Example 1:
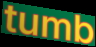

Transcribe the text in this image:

tumb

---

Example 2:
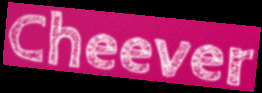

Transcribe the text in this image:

Cheever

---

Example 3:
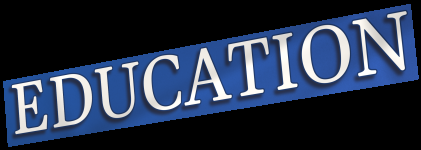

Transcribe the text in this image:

EDUCATION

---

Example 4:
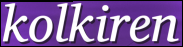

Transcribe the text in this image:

kolkiren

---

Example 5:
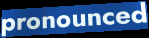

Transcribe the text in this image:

pronounced